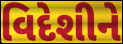
વિદેશીને